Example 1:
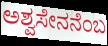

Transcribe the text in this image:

ಅಶ್ವಸೇನನೆಂಬ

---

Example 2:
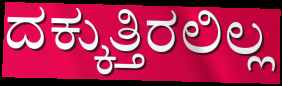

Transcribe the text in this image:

ದಕ್ಕುತ್ತಿರಲಿಲ್ಲ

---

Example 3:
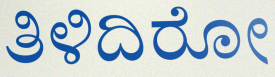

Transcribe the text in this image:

ತಿಳಿದಿರೋ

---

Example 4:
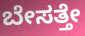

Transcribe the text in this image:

ಬೇಸತ್ತೇ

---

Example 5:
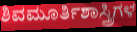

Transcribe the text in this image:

ಶಿವಮೂರ್ತಿಶಾಸ್ತ್ರಿಗಳ